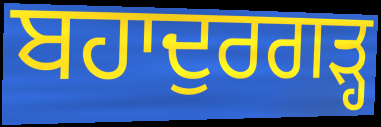
ਬਹਾਦੁਰਗੜ੍ਹ